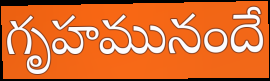
గృహమునందే